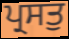
ਪ੍ਰਸਤੁ